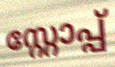
സ്റ്റോപ്പ്